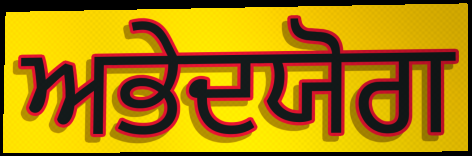
ਅਭੇਦਯੋਗ